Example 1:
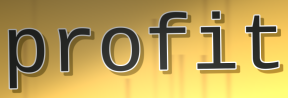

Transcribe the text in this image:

profit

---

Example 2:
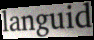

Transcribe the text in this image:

languid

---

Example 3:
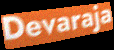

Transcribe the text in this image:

Devaraja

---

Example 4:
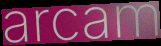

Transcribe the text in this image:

arcam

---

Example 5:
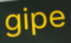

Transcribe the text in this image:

gipe